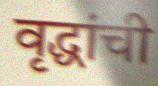
वृद्धांची